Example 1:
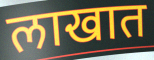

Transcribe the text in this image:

लाखात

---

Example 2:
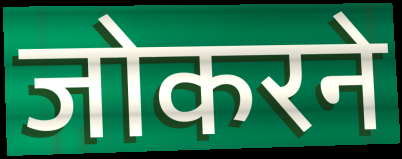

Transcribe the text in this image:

जोकरने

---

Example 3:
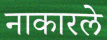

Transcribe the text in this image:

नाकारले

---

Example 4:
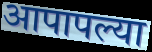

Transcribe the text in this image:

आपापल्या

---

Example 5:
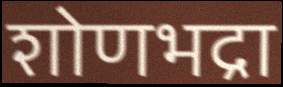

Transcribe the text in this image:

शोणभद्रा